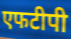
एफटीपी